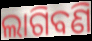
ଲାଗିବଣି